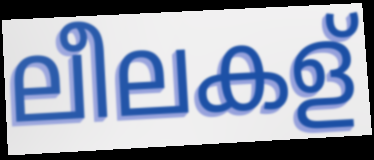
ലീലകള്